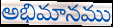
అభిమానము